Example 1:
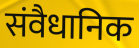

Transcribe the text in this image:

संवैधानिक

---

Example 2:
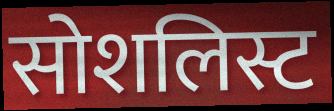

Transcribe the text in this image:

सोशलिस्ट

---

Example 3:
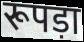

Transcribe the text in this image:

रूपड़ा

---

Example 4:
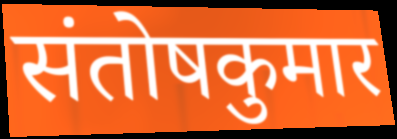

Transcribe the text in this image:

संतोषकुमार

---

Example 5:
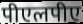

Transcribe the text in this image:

पीएलपीए